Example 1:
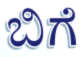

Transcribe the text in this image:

ಬಿಗೆ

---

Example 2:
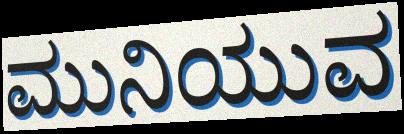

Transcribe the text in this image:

ಮುನಿಯುವ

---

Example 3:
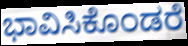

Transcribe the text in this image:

ಭಾವಿಸಿಕೊಂಡರೆ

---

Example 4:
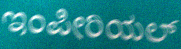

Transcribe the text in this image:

ಇಂಪೀರಿಯಲ್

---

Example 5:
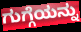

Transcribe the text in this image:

ಗುಗ್ಗೆಯನ್ನು